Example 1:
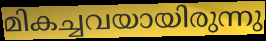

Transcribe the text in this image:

മികച്ചവയായിരുന്നു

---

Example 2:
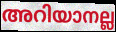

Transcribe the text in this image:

അറിയാനല്ല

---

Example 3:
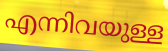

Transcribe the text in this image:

എന്നിവയുള്ള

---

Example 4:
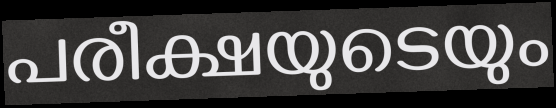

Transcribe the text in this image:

പരീക്ഷയുടെയും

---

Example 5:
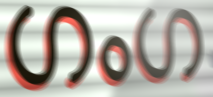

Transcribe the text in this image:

ഗംഗ